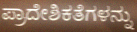
ಪ್ರಾದೇಶಿಕತೆಗಳನ್ನು